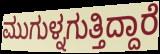
ಮುಗುಳ್ನಗುತ್ತಿದ್ದಾರೆ